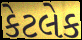
કેટલેક